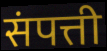
संपत्ती